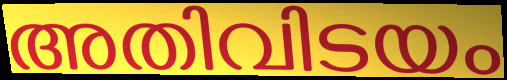
അതിവിടയം